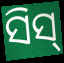
ସିସ୍